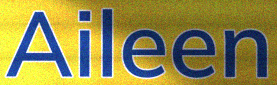
Aileen